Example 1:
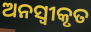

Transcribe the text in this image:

ଅନସ୍ବୀକୃତ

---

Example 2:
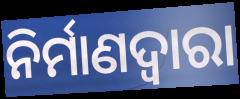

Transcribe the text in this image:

ନିର୍ମାଣଦ୍ୱାରା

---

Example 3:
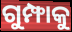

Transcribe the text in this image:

ଗୁମ୍ଫାକୁ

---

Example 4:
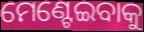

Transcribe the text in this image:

ମେଣ୍ଟେଇବାକୁ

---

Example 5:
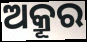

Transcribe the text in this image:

ଅକ୍ରୂର